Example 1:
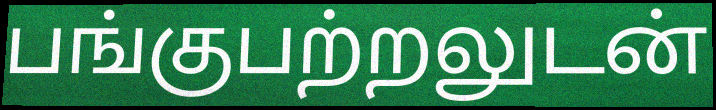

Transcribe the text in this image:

பங்குபற்றலுடன்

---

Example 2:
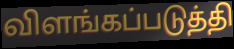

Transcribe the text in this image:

விளங்கப்படுத்தி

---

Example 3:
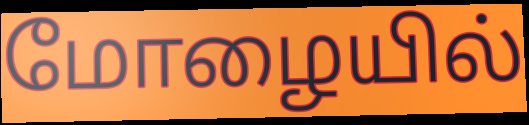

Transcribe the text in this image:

மோழையில்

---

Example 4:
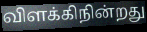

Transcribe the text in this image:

விளக்கிநின்றது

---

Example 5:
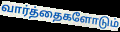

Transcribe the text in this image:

வார்த்தைகளோடும்